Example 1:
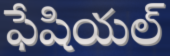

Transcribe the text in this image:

ఫేషియల్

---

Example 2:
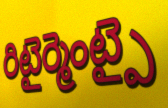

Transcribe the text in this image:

రిటైర్మెంట్పై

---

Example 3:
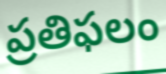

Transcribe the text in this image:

ప్రతిఫలం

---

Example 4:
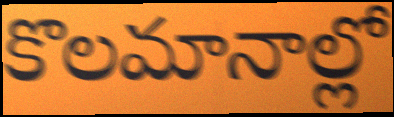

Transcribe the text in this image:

కొలమానాల్లో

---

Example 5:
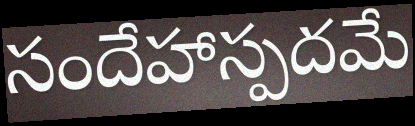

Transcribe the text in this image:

సందేహాస్పదమే